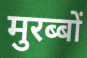
मुरब्बों